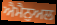
ਐਮੈਨੁਅਲ